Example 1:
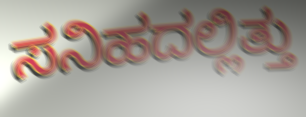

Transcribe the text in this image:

ಸನಿಹದಲ್ಲಿತ್ತು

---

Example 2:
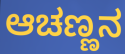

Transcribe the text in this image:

ಆಚಣ್ಣನ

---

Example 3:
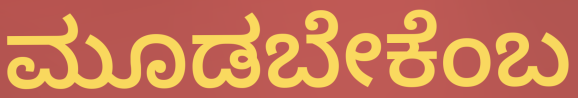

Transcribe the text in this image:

ಮೂಡಬೇಕೆಂಬ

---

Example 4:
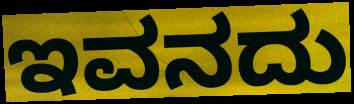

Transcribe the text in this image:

ಇವನದು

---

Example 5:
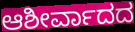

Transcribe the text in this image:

ಆಶೀರ್ವಾದದ